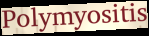
Polymyositis